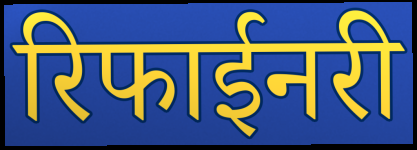
रिफाईनरी